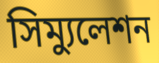
সিম্যুলেশন